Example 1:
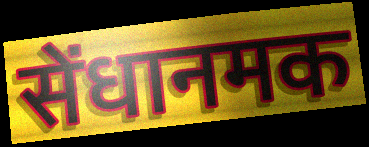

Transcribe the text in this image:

सेंधानमक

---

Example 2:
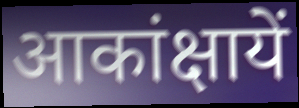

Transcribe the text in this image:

आकांक्षायें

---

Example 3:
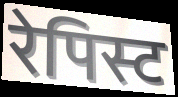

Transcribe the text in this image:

रेपिस्ट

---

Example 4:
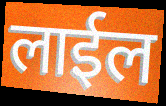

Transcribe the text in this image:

लाईल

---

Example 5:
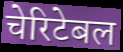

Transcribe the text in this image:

चेरिटेबल